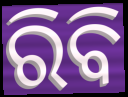
ରିବି